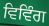
ਵਿਵਿੰਗ